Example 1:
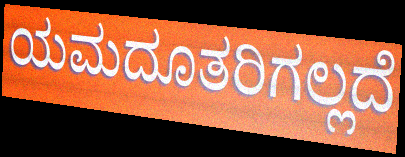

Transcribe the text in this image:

ಯಮದೂತರಿಗಲ್ಲದೆ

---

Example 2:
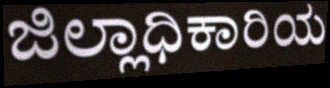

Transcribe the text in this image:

ಜಿಲ್ಲಾಧಿಕಾರಿಯ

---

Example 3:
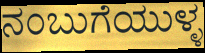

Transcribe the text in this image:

ನಂಬುಗೆಯುಳ್ಳ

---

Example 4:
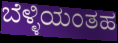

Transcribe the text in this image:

ಬೆಳ್ಳಿಯಂತಹ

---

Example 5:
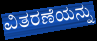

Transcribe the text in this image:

ವಿತರಣೆಯನ್ನು